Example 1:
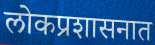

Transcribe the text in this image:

लोकप्रशासनात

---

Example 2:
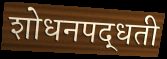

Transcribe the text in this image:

शोधनपद्धती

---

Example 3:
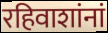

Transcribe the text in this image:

रहिवाशांनां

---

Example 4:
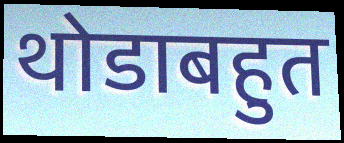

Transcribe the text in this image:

थोडाबहुत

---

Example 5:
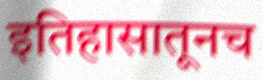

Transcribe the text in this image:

इतिहासातूनच